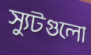
স্যুটগুলো